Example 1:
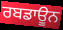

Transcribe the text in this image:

ਰਬਡਾਊਨ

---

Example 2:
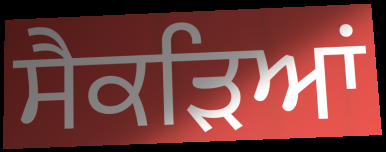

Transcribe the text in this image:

ਸੈਕੜਿਆਂ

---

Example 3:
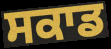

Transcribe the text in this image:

ਸਕਾਡ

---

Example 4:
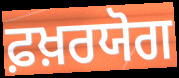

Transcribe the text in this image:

ਫ਼ਖ਼ਰਯੋਗ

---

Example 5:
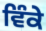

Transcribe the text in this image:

ਵਿੰਕੇ